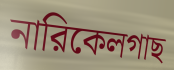
নারিকেলগাছ